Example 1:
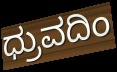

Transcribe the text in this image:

ಧ್ರುವದಿಂ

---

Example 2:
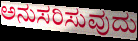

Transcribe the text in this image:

ಅನುಸರಿಸುವುದು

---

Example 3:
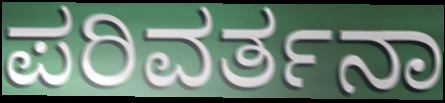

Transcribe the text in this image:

ಪರಿವರ್ತನಾ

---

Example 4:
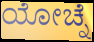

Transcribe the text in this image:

ಯೋಚ್ನೆ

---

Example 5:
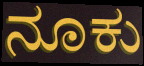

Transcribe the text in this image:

ನೂಕು